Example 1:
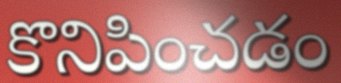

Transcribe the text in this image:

కొనిపించడం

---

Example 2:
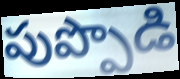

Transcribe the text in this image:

పుప్పొడి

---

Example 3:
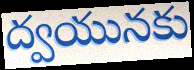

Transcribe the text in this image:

ద్వయునకు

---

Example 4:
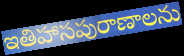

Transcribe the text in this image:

ఇతిహాసపురాణాలను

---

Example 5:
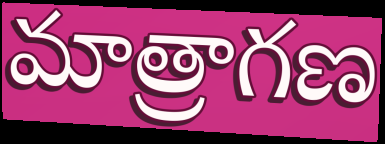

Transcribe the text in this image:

మాత్రాగణ